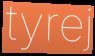
tyrej